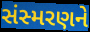
સંસ્મરણને